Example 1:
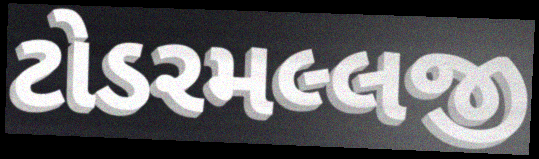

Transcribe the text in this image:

ટોડરમલ્લજી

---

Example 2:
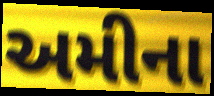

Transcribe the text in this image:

અમીના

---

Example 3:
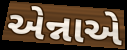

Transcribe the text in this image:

એન્નાએ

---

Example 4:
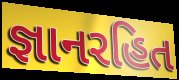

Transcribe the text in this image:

જ્ઞાનરહિત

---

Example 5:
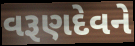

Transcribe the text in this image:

વરૂણદેવને